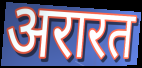
अरारत